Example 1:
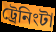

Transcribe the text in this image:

ট্রেনিংটা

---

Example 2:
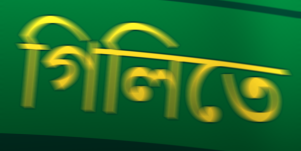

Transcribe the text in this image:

গিলিতে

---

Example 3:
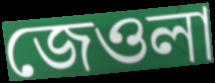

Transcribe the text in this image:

জেওলা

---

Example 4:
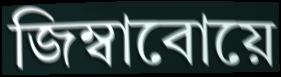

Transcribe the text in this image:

জিম্বাবোয়ে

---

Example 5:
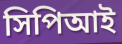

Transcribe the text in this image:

সিপিআই